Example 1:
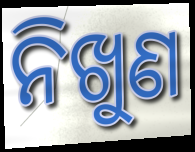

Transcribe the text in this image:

ନିଖୁଣ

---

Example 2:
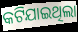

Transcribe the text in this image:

କଟିଯାଇଥିଲା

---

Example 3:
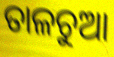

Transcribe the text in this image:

ତାଳଚୁଆ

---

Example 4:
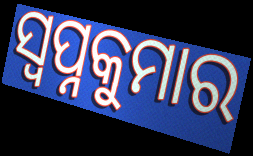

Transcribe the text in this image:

ସ୍ଵପ୍ନକୁମାର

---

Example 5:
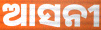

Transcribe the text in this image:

ଆସନୀ